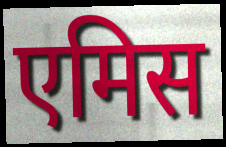
एमिस